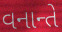
વનાન્તે